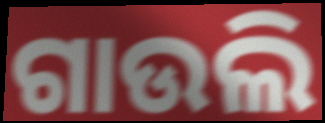
ଗାଉଲି